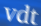
vdt